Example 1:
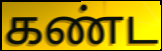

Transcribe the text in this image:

கண்ட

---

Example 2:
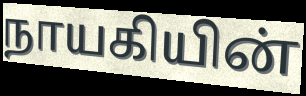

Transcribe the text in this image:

நாயகியின்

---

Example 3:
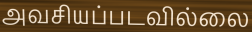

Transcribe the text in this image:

அவசியப்படவில்லை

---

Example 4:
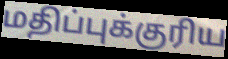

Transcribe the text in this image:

மதிப்புக்குரிய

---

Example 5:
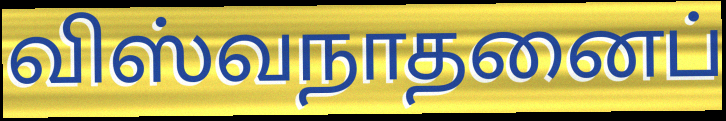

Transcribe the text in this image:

விஸ்வநாதனைப்